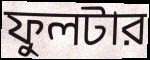
ফুলটার